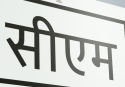
सीएम